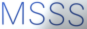
MSSS